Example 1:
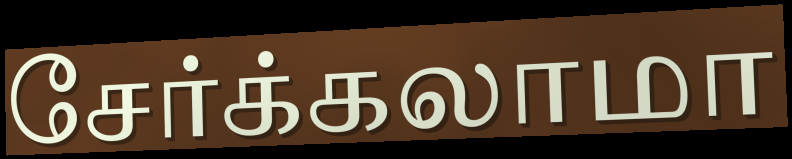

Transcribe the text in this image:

சேர்க்கலாமா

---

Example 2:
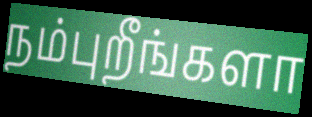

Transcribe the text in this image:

நம்புறீங்களா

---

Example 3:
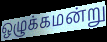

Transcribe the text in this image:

ஒழுக்கமன்று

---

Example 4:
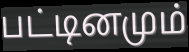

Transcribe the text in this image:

பட்டினமும்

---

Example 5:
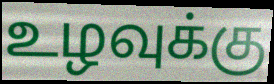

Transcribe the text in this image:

உழவுக்கு